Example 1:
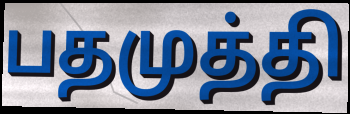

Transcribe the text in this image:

பதமுத்தி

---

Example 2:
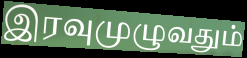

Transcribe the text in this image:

இரவுமுழுவதும்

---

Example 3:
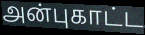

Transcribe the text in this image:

அன்புகாட்ட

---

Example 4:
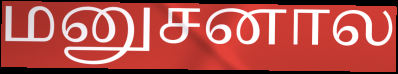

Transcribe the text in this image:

மனுசனால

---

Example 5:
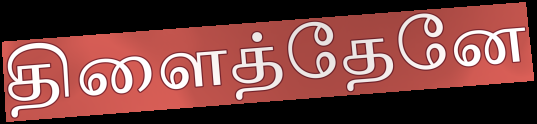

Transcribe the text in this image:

திளைத்தேனே